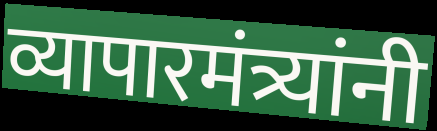
व्यापारमंत्र्यांनी